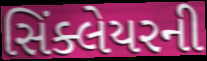
સિંક્લેયરની